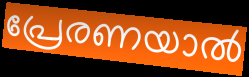
പ്രേരണയാൽ